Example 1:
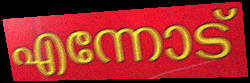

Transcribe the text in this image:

എന്നോട്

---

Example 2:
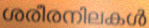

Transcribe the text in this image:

ശരീരനിലകൾ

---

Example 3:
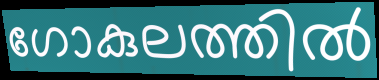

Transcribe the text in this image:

ഗോകുലത്തിൽ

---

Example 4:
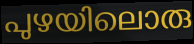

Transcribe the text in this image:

പുഴയിലൊരു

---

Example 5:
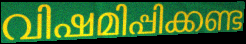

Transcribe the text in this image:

വിഷമിപ്പിക്കണ്ട